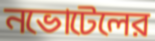
নভোটেলের